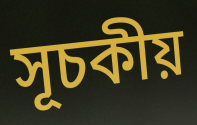
সূচকীয়